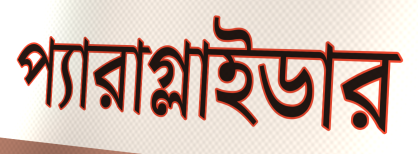
প্যারাগ্লাইডার